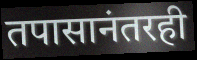
तपासानंतरही